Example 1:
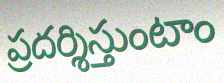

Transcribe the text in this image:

ప్రదర్శిస్తుంటాం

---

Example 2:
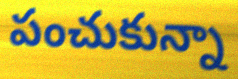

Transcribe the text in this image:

పంచుకున్నా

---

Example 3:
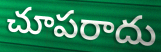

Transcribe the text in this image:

చూపరాదు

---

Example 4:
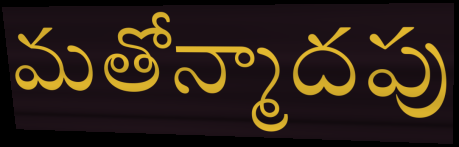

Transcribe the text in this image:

మతోన్మాదపు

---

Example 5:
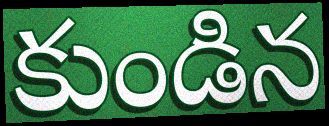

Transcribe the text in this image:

కుండిన